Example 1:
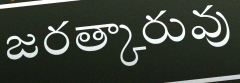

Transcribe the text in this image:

జరత్కారువు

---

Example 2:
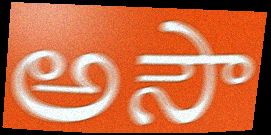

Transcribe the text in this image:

అసౌ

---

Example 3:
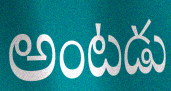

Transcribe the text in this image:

అంటడు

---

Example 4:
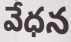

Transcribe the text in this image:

వేధన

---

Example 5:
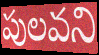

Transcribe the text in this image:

పులవని